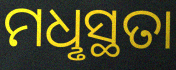
ମଧୢସ୍ଥତା